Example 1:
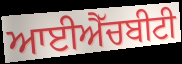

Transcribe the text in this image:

ਆਈਐੱਚਬੀਟੀ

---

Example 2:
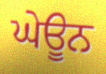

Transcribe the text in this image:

ਘੇਊਨ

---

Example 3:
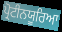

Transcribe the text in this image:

ਪ੍ਰੋਟੀਨਯੂਰਿਆ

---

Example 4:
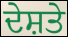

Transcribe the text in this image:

ਦੇਸ਼ਤੇ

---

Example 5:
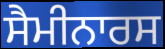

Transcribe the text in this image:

ਸੈਮੀਨਾਰਸ